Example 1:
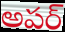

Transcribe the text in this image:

అపర్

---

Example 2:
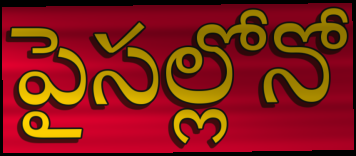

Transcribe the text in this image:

పైసల్లోనో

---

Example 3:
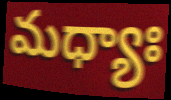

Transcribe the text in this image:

మధ్యాః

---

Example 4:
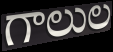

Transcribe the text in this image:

గాలుల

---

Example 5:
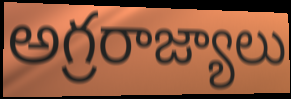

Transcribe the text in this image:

అగ్రరాజ్యాలు